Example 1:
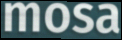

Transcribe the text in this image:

mosa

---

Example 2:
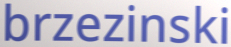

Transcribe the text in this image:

brzezinski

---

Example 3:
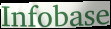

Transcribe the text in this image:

Infobase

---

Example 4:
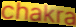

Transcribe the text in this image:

chakra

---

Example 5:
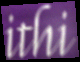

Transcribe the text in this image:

ithi